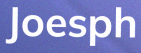
Joesph